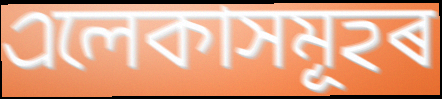
এলেকাসমূহৰ